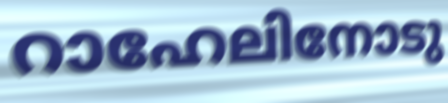
റാഹേലിനോടു